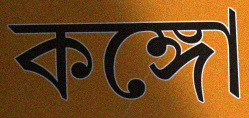
কঙ্গো